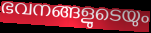
ഭവനങ്ങളുടെയും